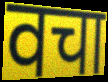
वचा